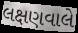
લક્ષણવાલે